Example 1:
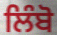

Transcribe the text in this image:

ਲਿੰਬੋ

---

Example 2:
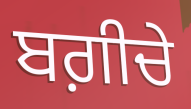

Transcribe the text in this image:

ਬਗ਼ੀਚੇ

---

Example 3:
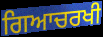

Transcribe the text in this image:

ਗਿਆਚਰਖੀ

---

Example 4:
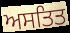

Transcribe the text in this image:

ਅਸਤਿਤ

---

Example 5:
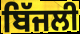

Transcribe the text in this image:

ਬਿੱਜਲੀ